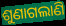
ଶୁଣାଗଲାଣି